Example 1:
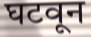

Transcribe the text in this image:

घटवून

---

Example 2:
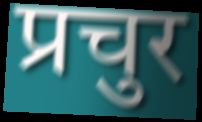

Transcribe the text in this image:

प्रचुर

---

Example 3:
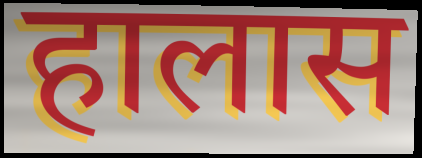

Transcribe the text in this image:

हालास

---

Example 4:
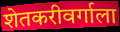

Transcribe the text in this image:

शेतकरीवर्गाला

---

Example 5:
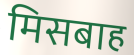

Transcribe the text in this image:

मिसबाह